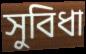
সুবিধা